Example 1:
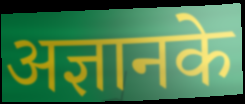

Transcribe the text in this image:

अज्ञानके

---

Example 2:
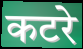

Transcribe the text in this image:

कटरे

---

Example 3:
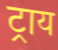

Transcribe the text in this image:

ट्राय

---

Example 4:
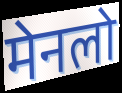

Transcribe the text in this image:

मेनलो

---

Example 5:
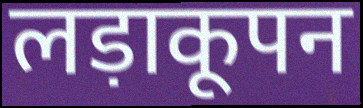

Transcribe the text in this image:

लड़ाकूपन